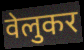
वेलुकर